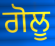
ਗੋਲੂ